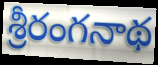
శ్రీరంగనాథ